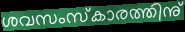
ശവസംസ്കാരത്തിനു്